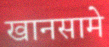
खानसामे